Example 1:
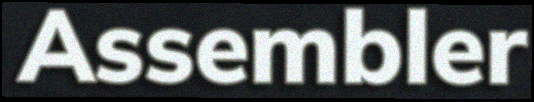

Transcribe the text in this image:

Assembler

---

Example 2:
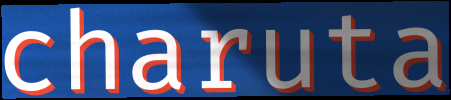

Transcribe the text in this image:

charuta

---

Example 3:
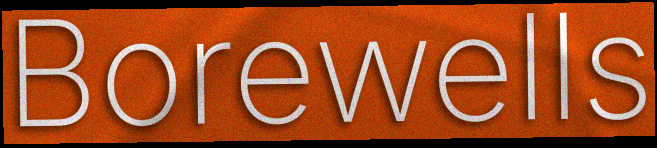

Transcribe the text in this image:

Borewells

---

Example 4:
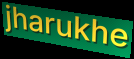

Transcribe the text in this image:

jharukhe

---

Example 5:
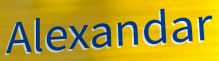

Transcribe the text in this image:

Alexandar